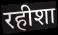
रहीशा